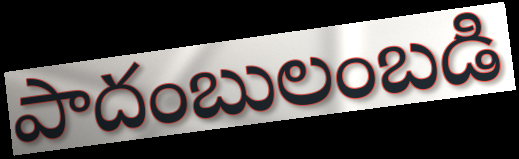
పాదంబులంబడి